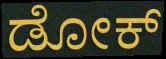
ಡೋಕ್